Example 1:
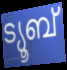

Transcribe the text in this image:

ട്യൂബ്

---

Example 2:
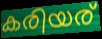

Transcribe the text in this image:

കരിയര്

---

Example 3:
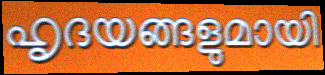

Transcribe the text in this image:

ഹൃദയങ്ങളുമായി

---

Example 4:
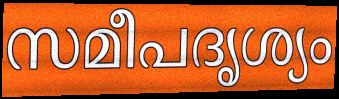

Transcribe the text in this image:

സമീപദൃശ്യം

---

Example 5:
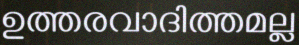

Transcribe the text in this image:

ഉത്തരവാദിത്തമല്ല